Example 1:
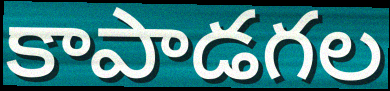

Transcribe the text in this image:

కాపాడగల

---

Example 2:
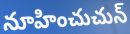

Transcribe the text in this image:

నూహించుచున్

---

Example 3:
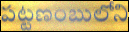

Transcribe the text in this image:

పట్టణంబులోని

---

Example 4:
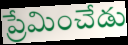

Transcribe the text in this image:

ప్రేమించేడు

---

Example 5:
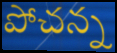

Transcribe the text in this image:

పోచన్న